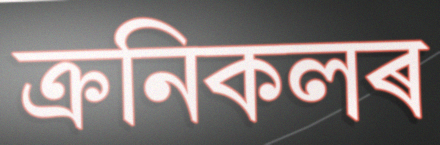
ক্ৰনিকলৰ